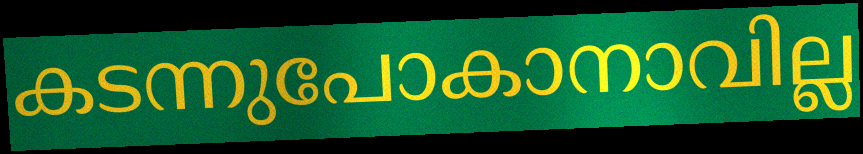
കടന്നുപോകാനാവില്ല